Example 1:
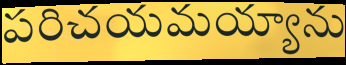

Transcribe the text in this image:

పరిచయమయ్యాను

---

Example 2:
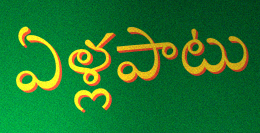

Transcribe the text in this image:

ఏళ్లపాటు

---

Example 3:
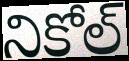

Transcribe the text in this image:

నికోల్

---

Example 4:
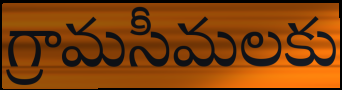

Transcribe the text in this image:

గ్రామసీమలకు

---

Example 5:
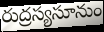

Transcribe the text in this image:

రుద్రస్యసూనుం